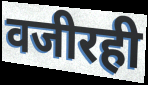
वजीरही